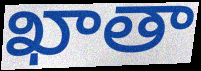
ఖాతా